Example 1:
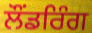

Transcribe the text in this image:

ਲੌਂਡਰਿੰਗ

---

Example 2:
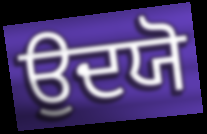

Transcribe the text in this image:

ਉਦਯੋ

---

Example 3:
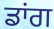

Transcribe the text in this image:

ਡਾਂਗ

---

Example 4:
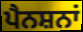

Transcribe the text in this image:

ਪੈਨਸ਼ਨਾਂ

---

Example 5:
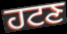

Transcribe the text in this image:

ਹਟਣ